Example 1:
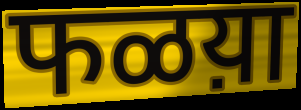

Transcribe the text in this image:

फळय़ा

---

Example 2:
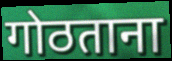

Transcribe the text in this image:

गोठताना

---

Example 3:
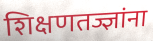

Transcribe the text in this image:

शिक्षणतज्ज्ञांना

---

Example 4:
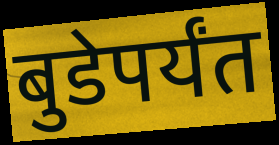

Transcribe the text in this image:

बुडेपर्यंत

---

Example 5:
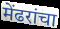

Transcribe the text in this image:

मेंढरांचा